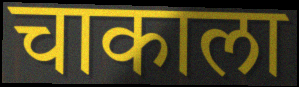
चाकाला